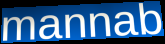
mannab